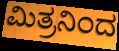
ಮಿತ್ರನಿಂದ